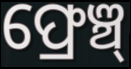
ଫ୍ରେଞ୍ଚ୍